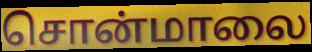
சொன்மாலை